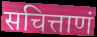
सचित्ताणं